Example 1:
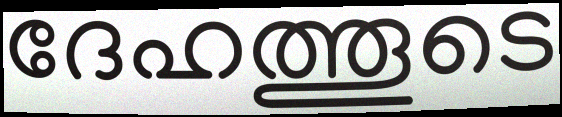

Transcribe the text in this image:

ദേഹത്തൂടെ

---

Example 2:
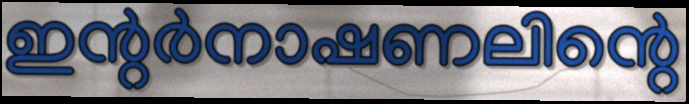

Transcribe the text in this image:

ഇന്റർനാഷണലിന്റെ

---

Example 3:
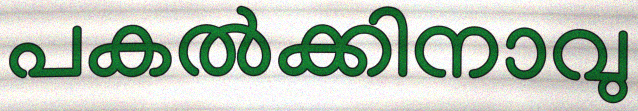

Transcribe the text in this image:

പകൽക്കിനാവു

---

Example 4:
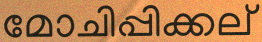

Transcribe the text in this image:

മോചിപ്പിക്കല്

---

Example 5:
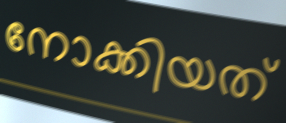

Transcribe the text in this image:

നോക്കിയത്